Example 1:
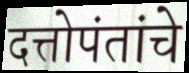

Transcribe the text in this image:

दत्तोपंतांचे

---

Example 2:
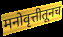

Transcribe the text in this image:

मनोवृत्तीतूनच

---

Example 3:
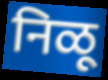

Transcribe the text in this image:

निळू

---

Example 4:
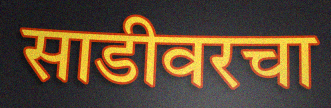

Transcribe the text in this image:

साडीवरचा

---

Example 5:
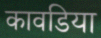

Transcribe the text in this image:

कावडिया